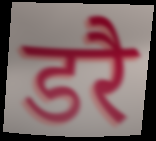
डरै